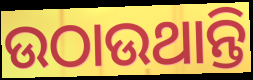
ଉଠାଉଥାନ୍ତି